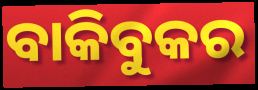
ବାକିବୁକର